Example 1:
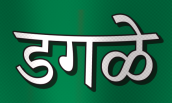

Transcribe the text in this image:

डगळे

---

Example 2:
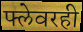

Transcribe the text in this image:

फ्लेवरही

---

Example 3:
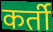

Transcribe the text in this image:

कर्ती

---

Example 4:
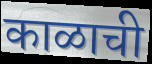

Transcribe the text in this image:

काळाची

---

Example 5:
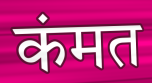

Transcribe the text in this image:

कंमत